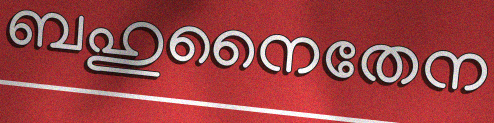
ബഹുനൈതേന